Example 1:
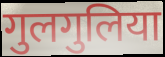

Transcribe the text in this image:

गुलगुलिया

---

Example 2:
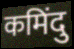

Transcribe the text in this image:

कमिंदु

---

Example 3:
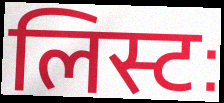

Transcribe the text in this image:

लिस्टः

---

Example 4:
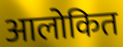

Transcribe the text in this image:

आलोकित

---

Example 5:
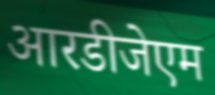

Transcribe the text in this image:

आरडीजेएम